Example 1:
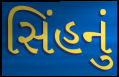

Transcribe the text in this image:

સિંહનું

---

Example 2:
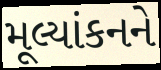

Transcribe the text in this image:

મૂલ્યાંકનને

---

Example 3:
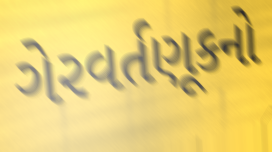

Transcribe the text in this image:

ગેરવર્તણૂકનો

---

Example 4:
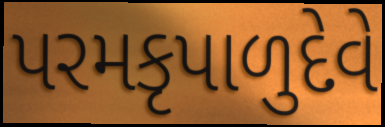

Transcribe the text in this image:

પરમકૃપાળુદેવે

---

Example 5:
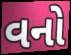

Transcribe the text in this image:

વનો